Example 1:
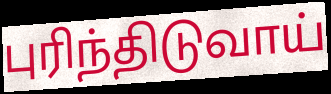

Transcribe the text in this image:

புரிந்திடுவாய்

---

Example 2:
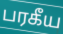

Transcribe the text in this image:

பரகீய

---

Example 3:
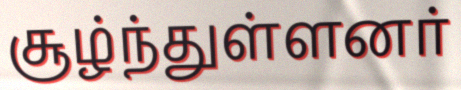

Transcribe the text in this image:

சூழ்ந்துள்ளனர்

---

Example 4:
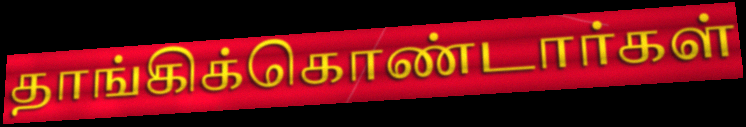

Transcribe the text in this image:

தாங்கிக்கொண்டார்கள்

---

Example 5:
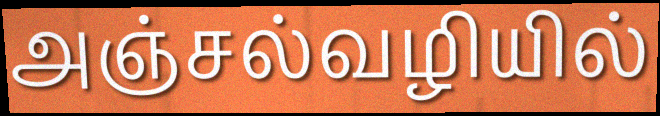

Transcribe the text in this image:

அஞ்சல்வழியில்